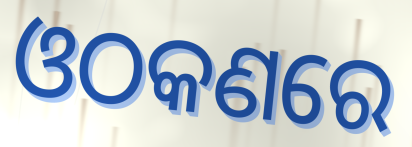
ଓଠକଣରେ